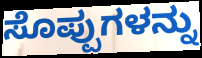
ಸೊಪ್ಪುಗಳನ್ನು